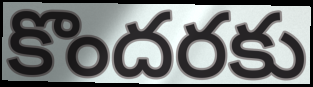
కొందరకు